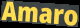
Amaro